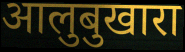
आलुबुखारा